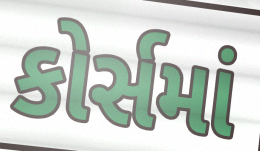
કોર્સમાં